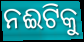
ନଈଟିକୁ